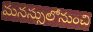
మనస్సులోనుంచి